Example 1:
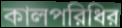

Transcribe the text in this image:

কালপরিধির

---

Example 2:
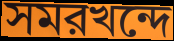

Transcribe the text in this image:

সমরখন্দে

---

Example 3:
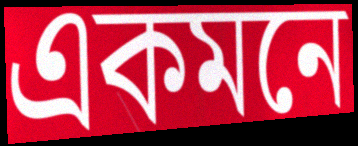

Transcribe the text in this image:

একমনে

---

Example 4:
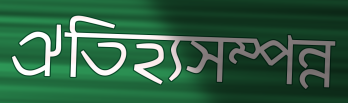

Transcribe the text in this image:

ঐতিহ্যসম্পন্ন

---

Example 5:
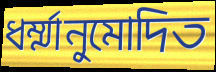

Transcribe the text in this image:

ধর্ম্মানুমোদিত